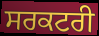
ਸਰਕਟਰੀ